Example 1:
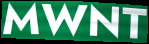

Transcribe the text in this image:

MWNT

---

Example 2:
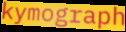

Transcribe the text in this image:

kymograph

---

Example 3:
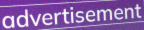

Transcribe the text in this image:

advertisement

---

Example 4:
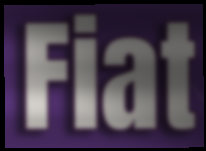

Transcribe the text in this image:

Fiat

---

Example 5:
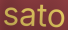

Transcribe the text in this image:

sato